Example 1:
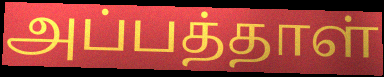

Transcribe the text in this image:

அப்பத்தாள்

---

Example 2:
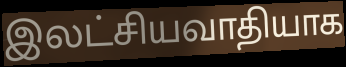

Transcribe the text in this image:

இலட்சியவாதியாக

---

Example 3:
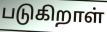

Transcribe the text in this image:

படுகிறாள்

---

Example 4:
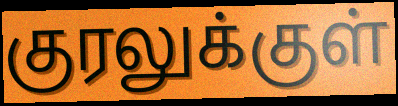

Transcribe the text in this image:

குரலுக்குள்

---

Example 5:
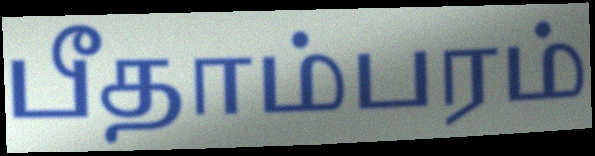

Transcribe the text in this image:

பீதாம்பரம்